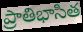
ప్రాతిభాసిత